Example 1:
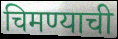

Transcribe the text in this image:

चिमण्याची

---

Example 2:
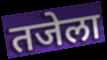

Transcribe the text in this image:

तजेला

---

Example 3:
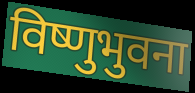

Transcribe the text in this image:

विष्णुभुवना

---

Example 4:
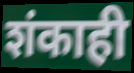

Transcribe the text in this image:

शंकाही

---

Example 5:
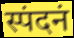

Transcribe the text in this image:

स्पंदनं